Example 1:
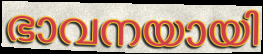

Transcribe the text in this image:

ഭാവനയായി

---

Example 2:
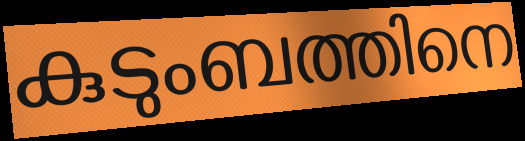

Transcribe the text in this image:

കുടുംബത്തിനെ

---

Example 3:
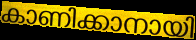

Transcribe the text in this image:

കാണിക്കാനായി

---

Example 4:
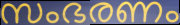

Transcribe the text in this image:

സംഭരണം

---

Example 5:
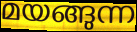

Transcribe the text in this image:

മയങ്ങുന്ന